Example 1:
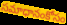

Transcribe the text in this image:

సమాధానంకోసం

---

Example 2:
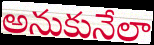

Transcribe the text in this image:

అనుకునేలా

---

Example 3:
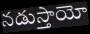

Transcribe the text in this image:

నడుస్తాయో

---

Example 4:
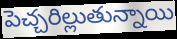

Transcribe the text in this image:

పెచ్చరిల్లుతున్నాయి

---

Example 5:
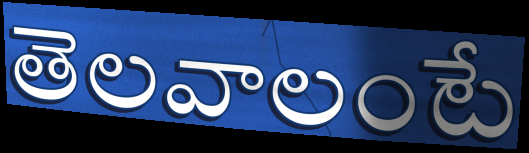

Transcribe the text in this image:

తెలవాలంటే